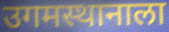
उगमस्थानाला